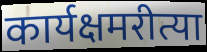
कार्यक्षमरीत्या